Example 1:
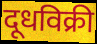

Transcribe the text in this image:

दूधविक्री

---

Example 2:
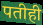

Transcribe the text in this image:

पतीही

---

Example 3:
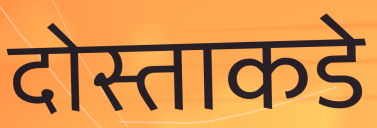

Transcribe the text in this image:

दोस्ताकडे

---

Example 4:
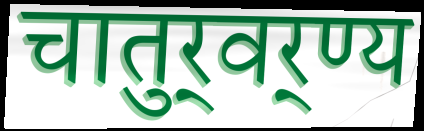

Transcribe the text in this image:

चातुर्वर्ण्य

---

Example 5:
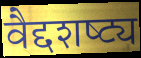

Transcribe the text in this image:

वैद्दशष्ट्य